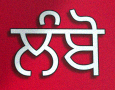
ਲੰਬੋ